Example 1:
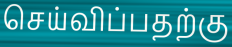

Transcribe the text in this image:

செய்விப்பதற்கு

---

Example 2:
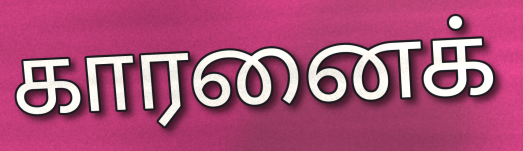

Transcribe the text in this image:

காரனைக்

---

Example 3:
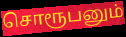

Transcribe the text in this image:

சொரூபனும்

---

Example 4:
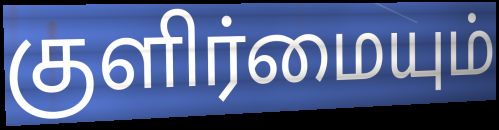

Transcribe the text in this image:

குளிர்மையும்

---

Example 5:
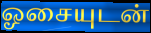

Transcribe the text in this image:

ஓசையுடன்